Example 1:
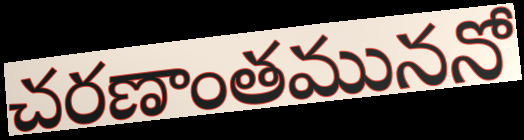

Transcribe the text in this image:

చరణాంతముననో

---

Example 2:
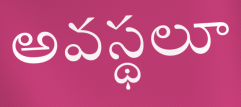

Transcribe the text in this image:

అవస్థలూ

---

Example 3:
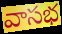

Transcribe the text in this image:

వాసభ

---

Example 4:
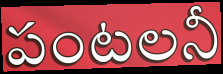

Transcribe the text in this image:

పంటలనీ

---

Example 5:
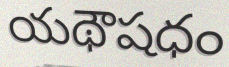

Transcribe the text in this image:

యథౌషధం